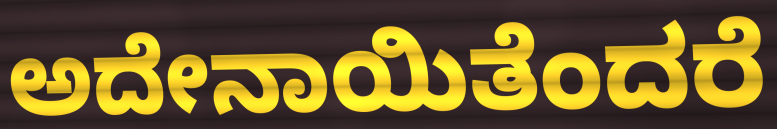
ಅದೇನಾಯಿತೆಂದರೆ